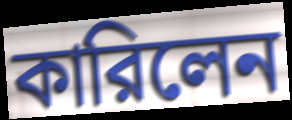
কারিলেন